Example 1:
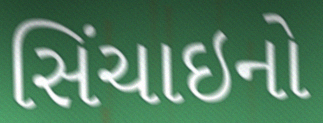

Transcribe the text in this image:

સિંચાઇનો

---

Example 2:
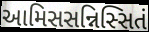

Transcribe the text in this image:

આમિસસન્નિસ્સિતં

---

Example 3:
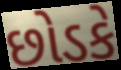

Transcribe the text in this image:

છોડકે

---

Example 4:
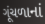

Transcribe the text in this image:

ગૂંચળાનાં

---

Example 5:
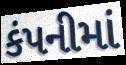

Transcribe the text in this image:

કંપનીમાં